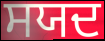
ਸਯਦ